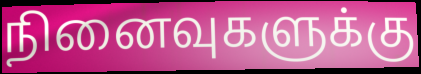
நினைவுகளுக்கு